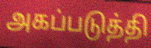
அகப்படுத்தி